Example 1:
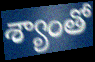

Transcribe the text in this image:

శ్యాంతో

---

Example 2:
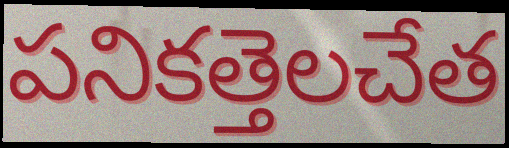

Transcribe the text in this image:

పనికత్తెలచేత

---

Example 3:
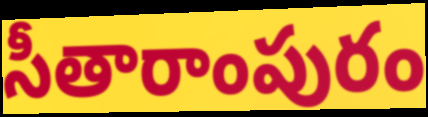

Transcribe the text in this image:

సీతారాంపురం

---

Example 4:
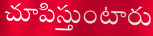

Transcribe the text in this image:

చూపిస్తుంటారు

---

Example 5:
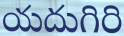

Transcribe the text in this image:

యదుగిరి